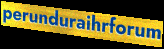
perunduraihrforum